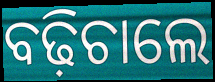
ବଢ଼ିଚାଲେ